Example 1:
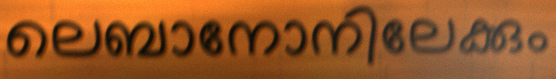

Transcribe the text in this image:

ലെബാനോനിലേക്കും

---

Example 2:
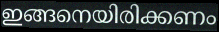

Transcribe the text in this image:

ഇങ്ങനെയിരിക്കണം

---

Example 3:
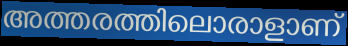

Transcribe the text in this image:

അത്തരത്തിലൊരാളാണ്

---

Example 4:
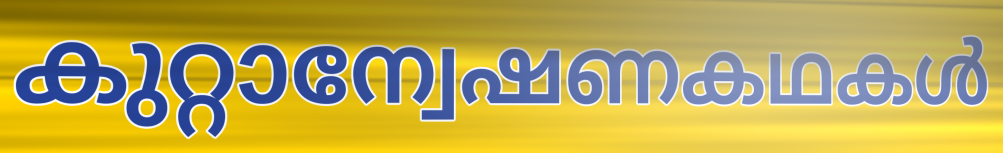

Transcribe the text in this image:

കുറ്റാന്വേഷണകഥകൾ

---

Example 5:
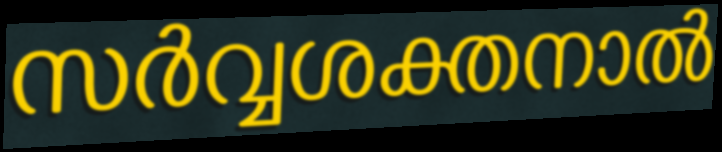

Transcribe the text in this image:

സർവ്വശക്തനാൽ